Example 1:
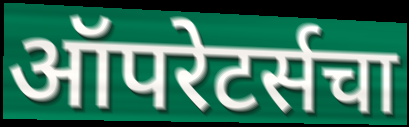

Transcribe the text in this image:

ऑपरेटर्सचा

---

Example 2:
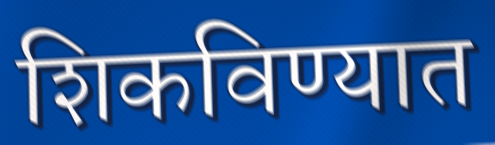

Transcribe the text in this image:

शिकविण्यात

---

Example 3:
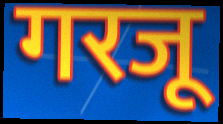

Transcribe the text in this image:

गरजू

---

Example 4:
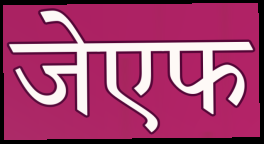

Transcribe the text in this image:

जेएफ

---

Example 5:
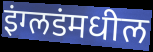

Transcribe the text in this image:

इंग्लडंमधील